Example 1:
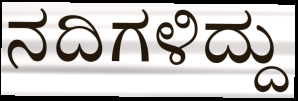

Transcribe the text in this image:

ನದಿಗಳಿದ್ದು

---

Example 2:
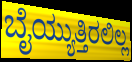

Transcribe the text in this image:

ಬೈಯ್ಯುತ್ತಿರಲಿಲ್ಲ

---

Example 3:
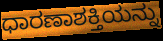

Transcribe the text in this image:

ಧಾರಣಾಶಕ್ತಿಯನ್ನು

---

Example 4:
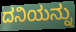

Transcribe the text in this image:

ದನಿಯನ್ನು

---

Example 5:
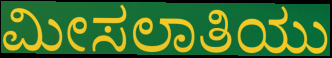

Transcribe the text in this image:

ಮೀಸಲಾತಿಯು